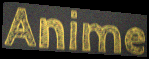
Anime